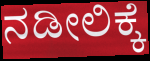
ನಡೀಲಿಕ್ಕೆ